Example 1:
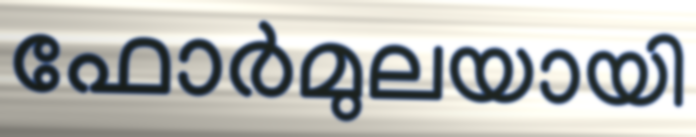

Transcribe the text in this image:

ഫോർമുലയായി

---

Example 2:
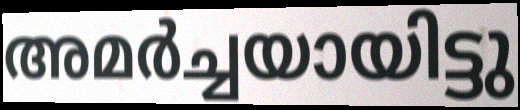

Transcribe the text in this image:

അമർച്ചയായിട്ടു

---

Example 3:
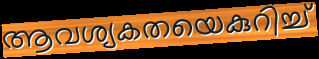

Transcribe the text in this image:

ആവശ്യകതയെകുറിച്ച്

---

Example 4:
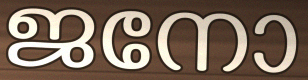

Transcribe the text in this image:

ജനോ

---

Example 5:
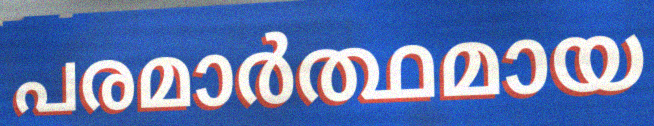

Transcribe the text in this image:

പരമാർത്ഥമായ